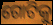
ଗୋଟିକୁ